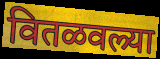
वितळवल्या